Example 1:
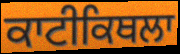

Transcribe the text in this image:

ਕਾਟੀਕਿਥਲਾ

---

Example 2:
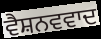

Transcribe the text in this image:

ਵੈਸ਼ਨਵਵਾਦ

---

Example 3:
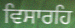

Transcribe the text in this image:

ਵਿਸਾਰਹਿ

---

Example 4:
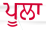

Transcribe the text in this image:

ਪੂਲਾ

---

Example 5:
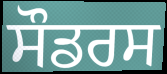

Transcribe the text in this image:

ਸੌਡਰਸ